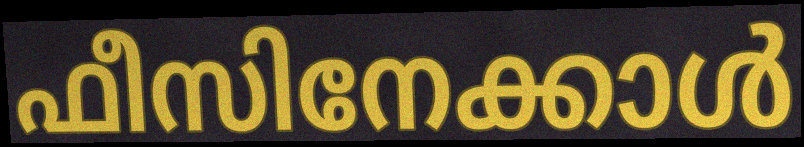
ഫീസിനേക്കാൾ